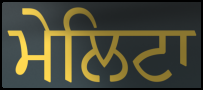
ਮੇਲਿਟਾ